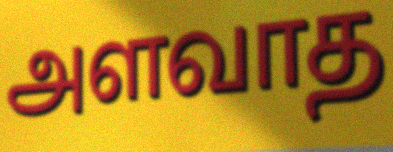
அளவாத